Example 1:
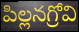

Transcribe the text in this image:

పిల్లనగ్రోవి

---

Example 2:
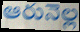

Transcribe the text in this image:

ఆరునెల్ల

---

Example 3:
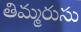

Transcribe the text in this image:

తిమ్మరుసు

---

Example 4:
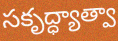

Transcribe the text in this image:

సకృద్ధ్యాత్వా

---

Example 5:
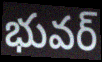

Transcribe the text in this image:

భువర్